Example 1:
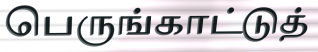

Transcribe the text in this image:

பெருங்காட்டுத்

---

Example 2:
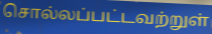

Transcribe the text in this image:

சொல்லப்பட்டவற்றுள்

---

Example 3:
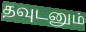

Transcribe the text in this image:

தவுடனும்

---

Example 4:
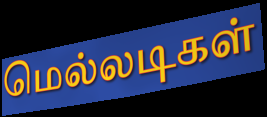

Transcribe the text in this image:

மெல்லடிகள்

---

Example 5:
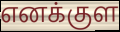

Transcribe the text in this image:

எனக்குள